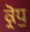
ਕ੍ਰੋਧੁ